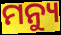
ମନ୍ୟୁ